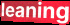
leaning